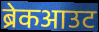
ब्रेकआउट